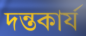
দন্তকার্য